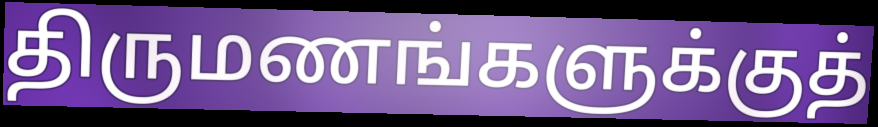
திருமணங்களுக்குத்